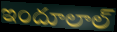
ఇందూలాల్